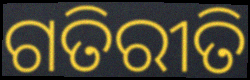
ଗତିରୀତି